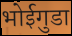
भोईगुडा